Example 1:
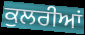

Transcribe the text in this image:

ਕੁਲਰੀਆਂ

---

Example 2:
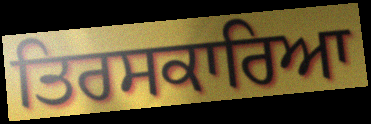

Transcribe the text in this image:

ਤਿਰਸਕਾਰਿਆ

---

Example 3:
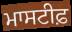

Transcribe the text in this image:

ਮਾਸਟੀਫ਼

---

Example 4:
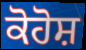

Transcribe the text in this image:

ਕੋਹੋਸ਼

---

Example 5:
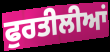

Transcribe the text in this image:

ਫੁਰਤੀਲੀਆਂ